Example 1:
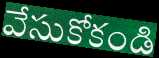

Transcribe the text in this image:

వేసుకోకండి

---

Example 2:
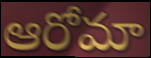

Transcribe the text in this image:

ఆరోమా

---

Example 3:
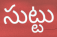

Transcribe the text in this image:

సుట్టు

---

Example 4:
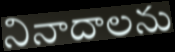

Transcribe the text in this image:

నినాదాలను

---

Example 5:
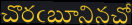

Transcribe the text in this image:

చొరఁబూనినచో